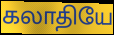
கலாதியே